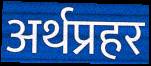
अर्थप्रहर